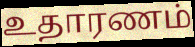
உதாரணம்